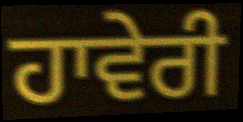
ਹਾਵੇਰੀ